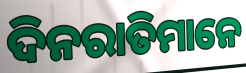
ଦିନରାତିମାନେ